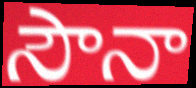
సౌనా